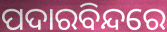
ପଦାରବିନ୍ଦରେ